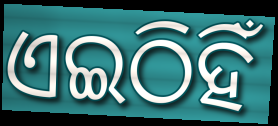
ଏଇଠିହିଁ